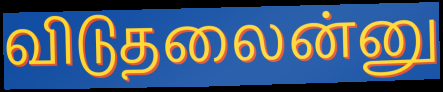
விடுதலைன்னு